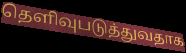
தெளிவுபடுத்துவதாக